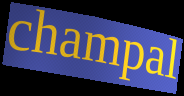
champal